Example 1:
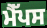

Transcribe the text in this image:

ਮੈੱਪਸ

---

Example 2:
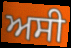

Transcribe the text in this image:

ਅਸੀ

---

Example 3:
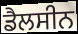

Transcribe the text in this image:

ਡੈਲਸੀਨ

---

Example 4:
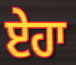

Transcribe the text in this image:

ਏਹਾ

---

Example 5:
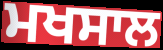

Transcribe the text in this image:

ਮਖਸਾਲ